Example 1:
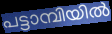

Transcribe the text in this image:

പട്ടാമ്പിയിൽ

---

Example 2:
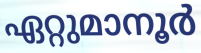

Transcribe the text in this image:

ഏറ്റുമാനൂർ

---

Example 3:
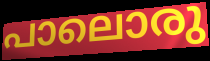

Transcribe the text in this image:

പാലൊരു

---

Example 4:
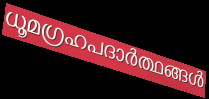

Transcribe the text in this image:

ധൂമഗ്രഹപദാർത്ഥങ്ങൾ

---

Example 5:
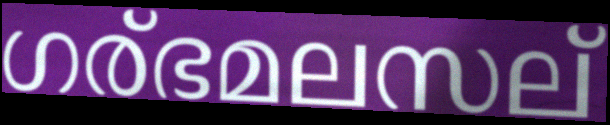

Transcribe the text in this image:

ഗര്ഭമലസല്